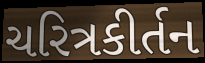
ચરિત્રકીર્તન